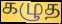
கழுத